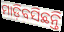
ମାଡ଼ିବସିଛନ୍ତି